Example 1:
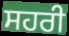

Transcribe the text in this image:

ਸਹਰੀ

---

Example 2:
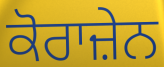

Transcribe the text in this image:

ਕੋਰਾਜ਼ੇਨ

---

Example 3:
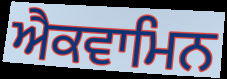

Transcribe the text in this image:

ਐਕਵਾਮਿਨ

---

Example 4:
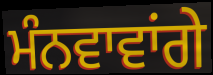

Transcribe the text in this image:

ਮੰਨਵਾਵਾਂਗੇ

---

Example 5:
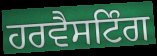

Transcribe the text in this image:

ਹਰਵੈਸਟਿੰਗ